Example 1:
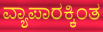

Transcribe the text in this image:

ವ್ಯಾಪಾರಕ್ಕಿಂತ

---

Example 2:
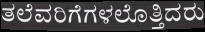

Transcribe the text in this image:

ತಲೆವರಿಗೆಗಳಲೊತ್ತಿದರು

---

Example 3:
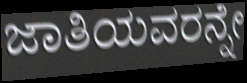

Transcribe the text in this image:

ಜಾತಿಯವರನ್ನೇ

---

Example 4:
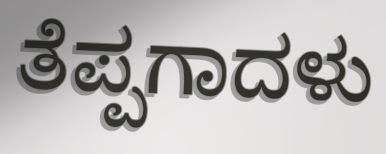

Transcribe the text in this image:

ತೆಪ್ಪಗಾದಳು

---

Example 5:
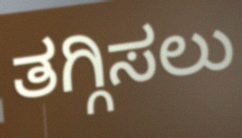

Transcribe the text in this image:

ತಗ್ಗಿಸಲು